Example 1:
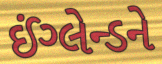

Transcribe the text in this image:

ઈંગ્લેન્ડને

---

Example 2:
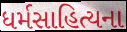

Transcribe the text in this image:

ધર્મસાહિત્યના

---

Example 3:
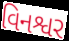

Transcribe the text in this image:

વિનશ્વર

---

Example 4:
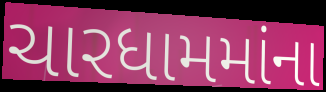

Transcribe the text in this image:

ચારધામમાંના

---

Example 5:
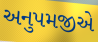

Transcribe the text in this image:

અનુપમજીએ